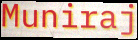
Muniraj